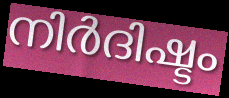
നിർദിഷ്ടം